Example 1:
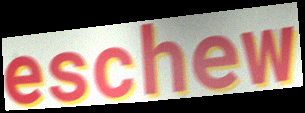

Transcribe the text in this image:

eschew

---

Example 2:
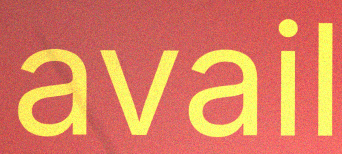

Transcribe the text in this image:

avail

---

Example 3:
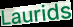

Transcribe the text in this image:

Laurids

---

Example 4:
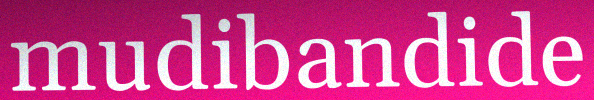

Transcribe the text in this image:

mudibandide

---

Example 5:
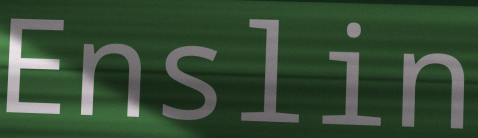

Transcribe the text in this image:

Enslin